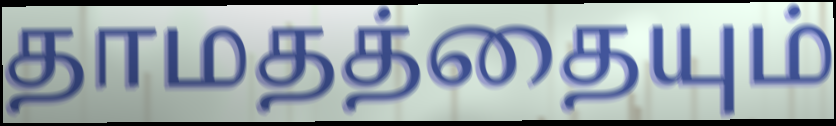
தாமதத்தையும்